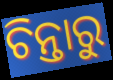
ଚିନ୍ତାରୁ